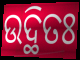
ଉଦ୍ଥିତଃ